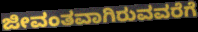
ಜೀವಂತವಾಗಿರುವವರೆಗೆ